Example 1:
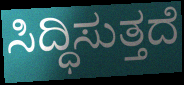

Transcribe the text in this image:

ಸಿದ್ಧಿಸುತ್ತದೆ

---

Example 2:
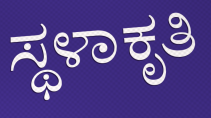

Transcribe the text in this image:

ಸ್ಥಳಾಕೃತಿ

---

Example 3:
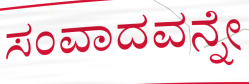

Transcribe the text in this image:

ಸಂವಾದವನ್ನೇ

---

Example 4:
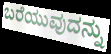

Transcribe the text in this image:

ಬರೆಯುವುದನ್ನು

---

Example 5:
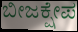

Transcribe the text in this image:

ಬೀಜಕ್ಷೇಪ